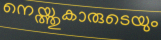
നെയ്ത്തുകാരുടെയും